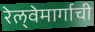
रेल्वेमार्गाची